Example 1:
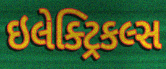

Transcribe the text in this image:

ઇલેક્ટ્રિકલ્સ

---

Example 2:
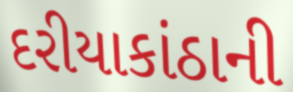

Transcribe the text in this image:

દરીયાકાંઠાની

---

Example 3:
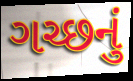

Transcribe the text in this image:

ગચ્છનું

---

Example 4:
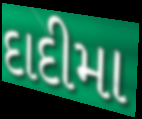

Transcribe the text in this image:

દાદીમા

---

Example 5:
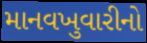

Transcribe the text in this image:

માનવખુવારીનો